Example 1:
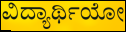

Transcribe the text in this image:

ವಿದ್ಯಾರ್ಥಿಯೋ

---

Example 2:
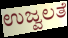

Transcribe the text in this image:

ಉಜ್ವಲತೆ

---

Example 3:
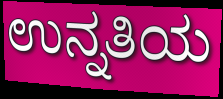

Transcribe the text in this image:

ಉನ್ನತಿಯ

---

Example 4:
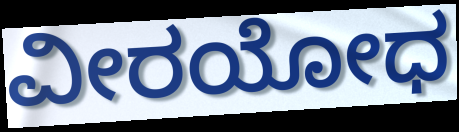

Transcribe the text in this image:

ವೀರಯೋಧ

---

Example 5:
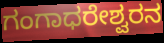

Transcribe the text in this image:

ಗಂಗಾಧರೇಶ್ವರನ